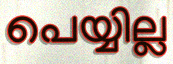
പെയ്യില്ല